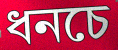
ধনচে